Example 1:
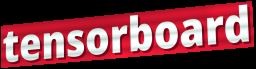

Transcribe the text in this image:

tensorboard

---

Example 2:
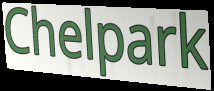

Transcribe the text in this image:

Chelpark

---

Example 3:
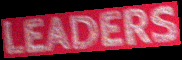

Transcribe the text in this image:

LEADERS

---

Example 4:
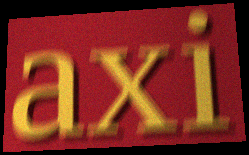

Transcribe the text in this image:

axi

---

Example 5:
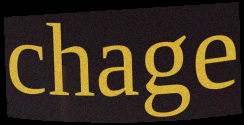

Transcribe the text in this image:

chage